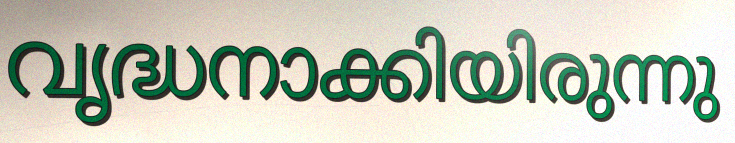
വൃദ്ധനാക്കിയിരുന്നു